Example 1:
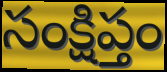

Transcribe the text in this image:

సంక్షిప్తం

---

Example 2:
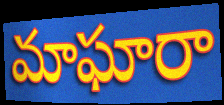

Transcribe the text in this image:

మాఘారా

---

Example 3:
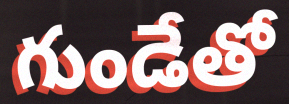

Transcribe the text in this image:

గుండేతో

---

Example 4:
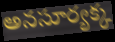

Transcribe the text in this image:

అనసూర్యక్క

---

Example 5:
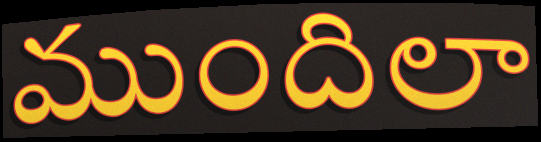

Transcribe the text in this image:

ముందిలా